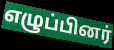
எழுப்பினர்